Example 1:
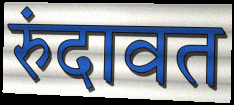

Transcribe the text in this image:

रुंदावत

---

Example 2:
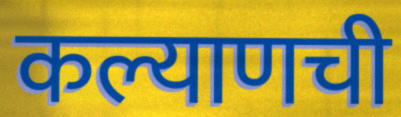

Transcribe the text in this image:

कल्याणची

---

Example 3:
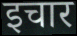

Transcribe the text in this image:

इचार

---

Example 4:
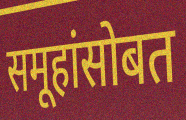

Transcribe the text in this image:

समूहांसोबत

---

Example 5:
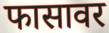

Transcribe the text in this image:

फासावर